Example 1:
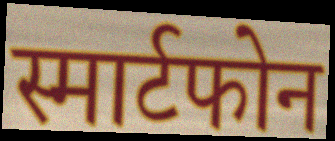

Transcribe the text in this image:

स्मार्टफोन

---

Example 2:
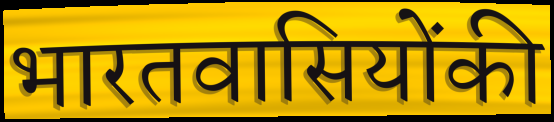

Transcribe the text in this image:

भारतवासियोंकी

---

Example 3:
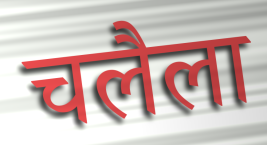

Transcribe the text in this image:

चलैला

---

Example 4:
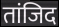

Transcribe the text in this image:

तांजिद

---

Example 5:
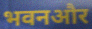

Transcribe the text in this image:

भवनऔर